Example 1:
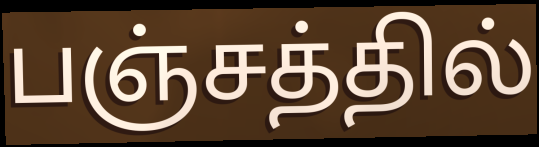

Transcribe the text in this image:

பஞ்சத்தில்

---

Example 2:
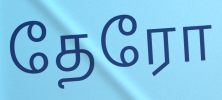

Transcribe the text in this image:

தேரோ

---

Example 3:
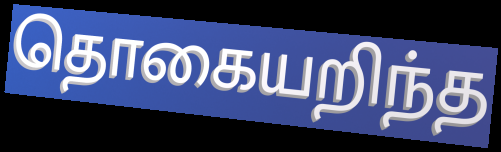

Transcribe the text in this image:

தொகையறிந்த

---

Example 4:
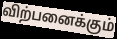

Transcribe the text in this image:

விற்பனைக்கும்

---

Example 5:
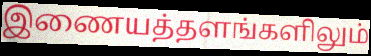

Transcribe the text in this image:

இணையத்தளங்களிலும்